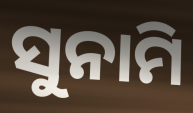
ସୁନାମି